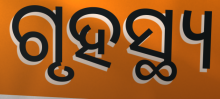
ଗୃହସ୍ଥ୍ୟ